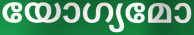
യോഗ്യമോ